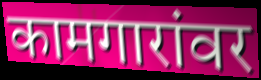
कामगारांवर